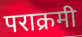
पराक्रमी